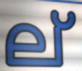
ല്